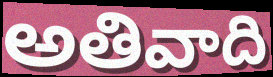
అతివాది